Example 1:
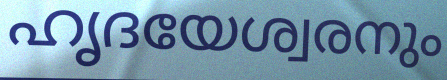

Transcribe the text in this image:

ഹൃദയേശ്വരനും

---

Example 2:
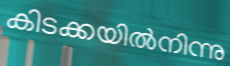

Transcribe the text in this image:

കിടക്കയിൽനിന്നു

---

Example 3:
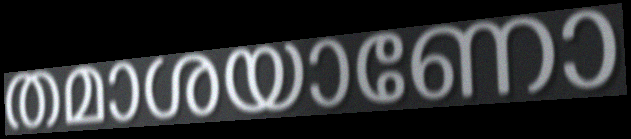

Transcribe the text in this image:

തമാശയാണോ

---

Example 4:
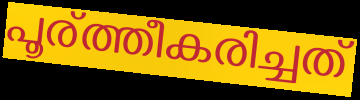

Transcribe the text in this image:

പൂര്ത്തീകരിച്ചത്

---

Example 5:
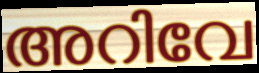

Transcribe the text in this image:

അറിവേ